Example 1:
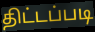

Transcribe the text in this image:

திட்டப்படி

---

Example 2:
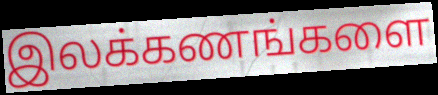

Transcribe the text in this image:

இலக்கணங்களை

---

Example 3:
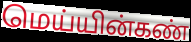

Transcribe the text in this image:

மெய்யின்கண்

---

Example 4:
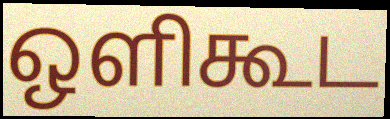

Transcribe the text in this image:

ஒளிகூட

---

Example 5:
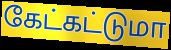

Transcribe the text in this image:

கேட்கட்டுமா